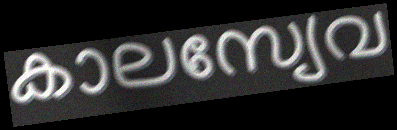
കാലസ്യേവ